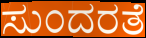
ಸುಂದರತೆ